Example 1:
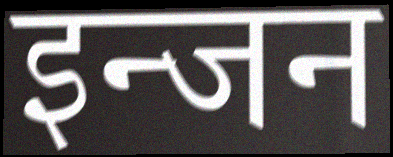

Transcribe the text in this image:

इन्जन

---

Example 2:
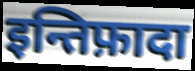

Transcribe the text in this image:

इन्तिफ़ादा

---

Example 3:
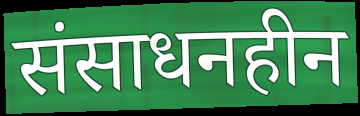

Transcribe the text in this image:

संसाधनहीन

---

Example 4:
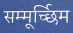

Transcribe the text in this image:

सम्मूर्च्छिम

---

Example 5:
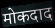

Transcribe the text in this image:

मोकदाद